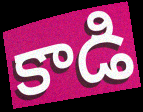
కాడి